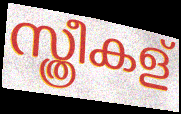
സ്ത്രീകള്